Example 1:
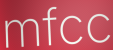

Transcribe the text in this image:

mfcc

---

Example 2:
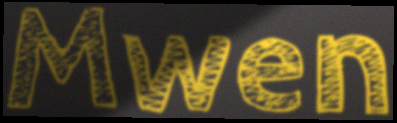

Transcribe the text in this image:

Mwen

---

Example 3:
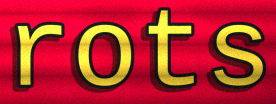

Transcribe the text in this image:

rots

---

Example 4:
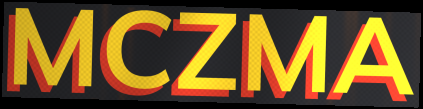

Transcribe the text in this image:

MCZMA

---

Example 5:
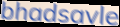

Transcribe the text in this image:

bhadsavle